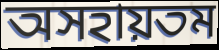
অসহায়তম